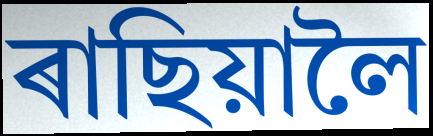
ৰাছিয়ালৈ